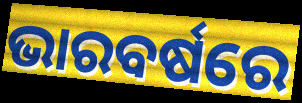
ଭାରବର୍ଷରେ